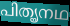
പിതൄനഥ